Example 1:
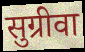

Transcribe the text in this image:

सुग्रीवा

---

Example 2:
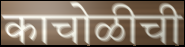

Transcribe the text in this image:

काचोळीची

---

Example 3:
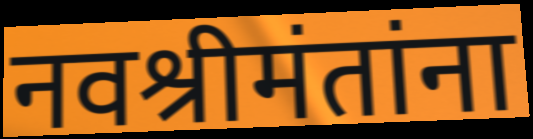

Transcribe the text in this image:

नवश्रीमंतांना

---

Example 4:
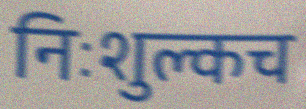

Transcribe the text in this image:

निःशुल्कच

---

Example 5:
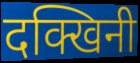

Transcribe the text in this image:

दक्खिनी